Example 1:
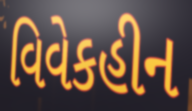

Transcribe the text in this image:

વિવેકહીન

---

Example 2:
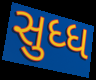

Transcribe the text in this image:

સુધ્ધ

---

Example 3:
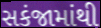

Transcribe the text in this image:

સકંજામાંથી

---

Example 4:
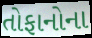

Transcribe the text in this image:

તોફાનોના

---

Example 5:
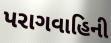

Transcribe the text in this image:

પરાગવાહિની